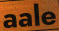
aale